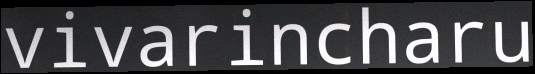
vivarincharu